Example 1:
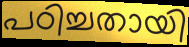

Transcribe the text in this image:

പഠിച്ചതായി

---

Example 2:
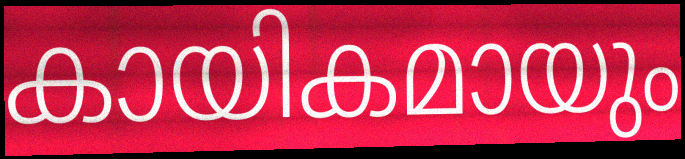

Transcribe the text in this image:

കായികമായും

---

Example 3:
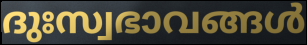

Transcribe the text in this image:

ദുഃസ്വഭാവങ്ങൾ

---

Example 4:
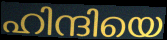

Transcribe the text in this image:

ഹിന്ദിയെ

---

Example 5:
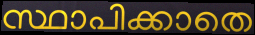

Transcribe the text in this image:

സ്ഥാപിക്കാതെ